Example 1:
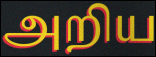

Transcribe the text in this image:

அறிய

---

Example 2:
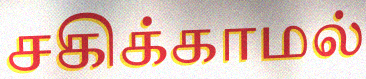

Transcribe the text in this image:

சகிக்காமல்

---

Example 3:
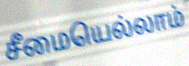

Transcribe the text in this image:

சீமையெல்லாம்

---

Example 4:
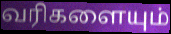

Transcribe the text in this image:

வரிகளையும்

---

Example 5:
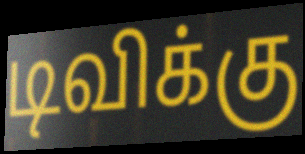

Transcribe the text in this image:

டிவிக்கு